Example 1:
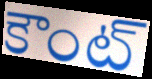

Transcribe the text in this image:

కౌంట్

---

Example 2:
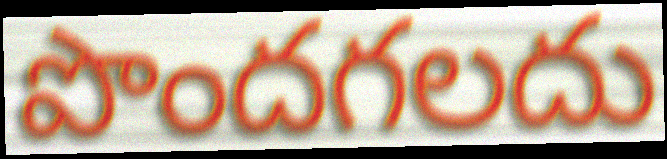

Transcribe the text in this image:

పొందగలదు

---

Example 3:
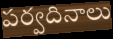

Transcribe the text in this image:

పర్వదినాలు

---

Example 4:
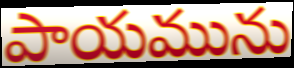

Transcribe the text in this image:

పాయమును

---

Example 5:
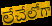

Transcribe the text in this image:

లేచేలోగా